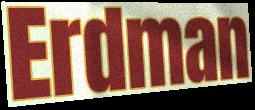
Erdman